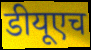
डीयूएच